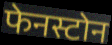
फेनस्टोन